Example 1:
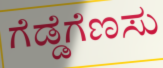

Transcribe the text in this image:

ಗೆಡ್ಡೆಗೆಣಸು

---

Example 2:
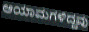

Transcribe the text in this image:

ಆಯಾಮಗಳಿದ್ದವು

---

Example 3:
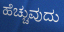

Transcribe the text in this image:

ಹೆಚ್ಚುವುದು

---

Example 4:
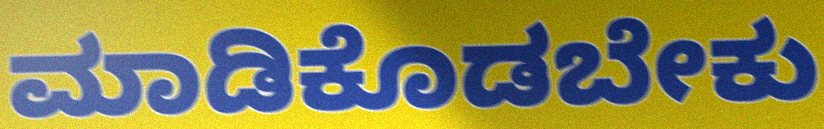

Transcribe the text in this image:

ಮಾಡಿಕೊಡಬೇಕು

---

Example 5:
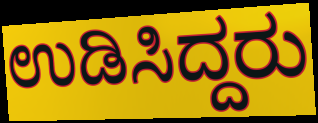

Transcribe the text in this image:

ಉಡಿಸಿದ್ದರು